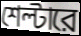
শেল্টারে